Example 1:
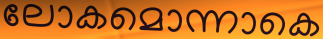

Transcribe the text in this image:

ലോകമൊന്നാകെ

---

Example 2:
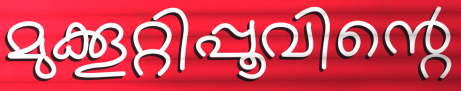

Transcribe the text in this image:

മുക്കൂറ്റിപ്പൂവിന്റെ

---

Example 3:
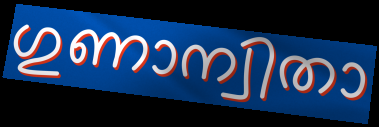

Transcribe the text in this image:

ഗുണാന്വിതാ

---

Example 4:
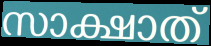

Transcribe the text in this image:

സാക്ഷാത്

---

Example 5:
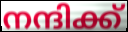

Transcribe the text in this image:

നന്ദിക്ക്